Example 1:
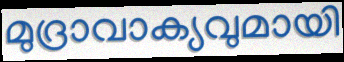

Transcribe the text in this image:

മുദ്രാവാക്യവുമായി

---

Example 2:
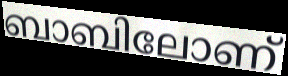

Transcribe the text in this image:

ബാബിലോണ്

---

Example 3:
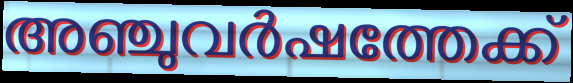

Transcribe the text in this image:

അഞ്ചുവർഷത്തേക്ക്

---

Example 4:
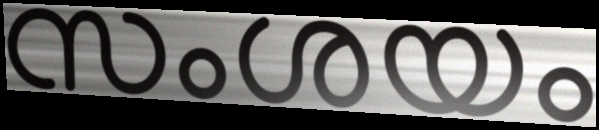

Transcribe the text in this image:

സംശയം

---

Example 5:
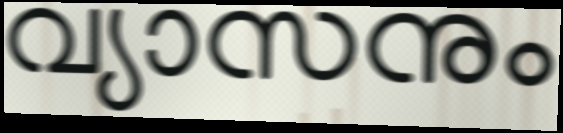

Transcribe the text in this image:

വ്യാസനും